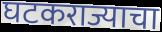
घटकराज्याचा